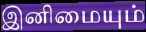
இனிமையும்